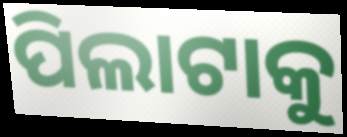
ପିଲାଟାକୁ